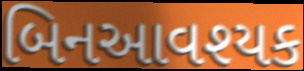
બિનઆવશ્યક